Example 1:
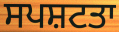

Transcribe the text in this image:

ਸਪਸ਼ਟਤਾ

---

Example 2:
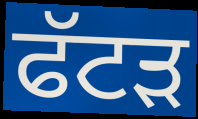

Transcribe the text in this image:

ਫੱਟੜ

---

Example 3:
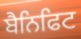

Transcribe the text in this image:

ਬੈਨਿਫਿਟ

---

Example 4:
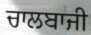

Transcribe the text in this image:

ਚਾਲਬਾਜੀ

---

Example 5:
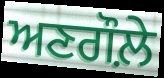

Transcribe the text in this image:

ਅਣਗੌਲ਼ੇ